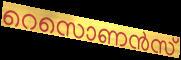
റെസൊണൻസ്